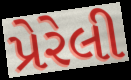
પ્રેરેલી